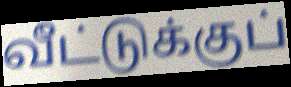
வீட்டுக்குப்